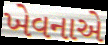
ખેવનાએ